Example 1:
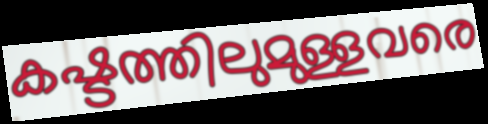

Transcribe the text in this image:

കഷ്ടത്തിലുമുള്ളവരെ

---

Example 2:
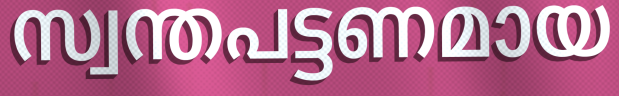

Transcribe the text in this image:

സ്വന്തപട്ടണമായ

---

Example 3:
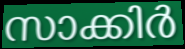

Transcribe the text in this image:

സാക്കിർ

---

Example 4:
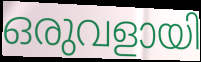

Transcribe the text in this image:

ഒരുവളായി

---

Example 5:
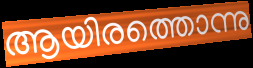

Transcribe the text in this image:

ആയിരത്തൊന്നു